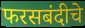
फरसबंदीचे